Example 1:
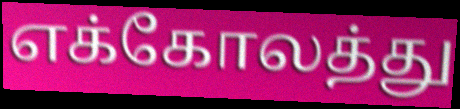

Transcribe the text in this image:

எக்கோலத்து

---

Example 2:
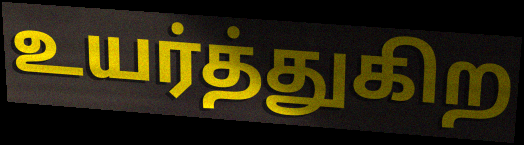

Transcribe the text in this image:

உயர்த்துகிற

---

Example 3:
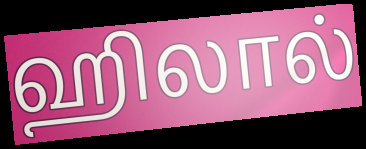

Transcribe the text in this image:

ஹிலால்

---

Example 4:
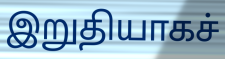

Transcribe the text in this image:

இறுதியாகச்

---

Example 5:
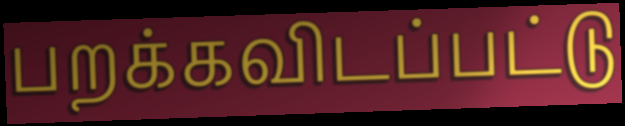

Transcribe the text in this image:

பறக்கவிடப்பட்டு